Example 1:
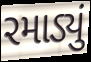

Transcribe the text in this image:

રમાડ્યું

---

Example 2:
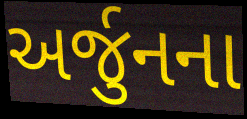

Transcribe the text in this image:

અર્જુનના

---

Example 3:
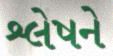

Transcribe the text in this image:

શ્લેષને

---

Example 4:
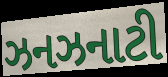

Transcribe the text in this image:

ઝનઝનાટી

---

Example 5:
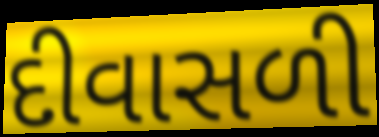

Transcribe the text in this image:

દીવાસળી